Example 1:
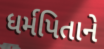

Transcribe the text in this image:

ધર્મપિતાને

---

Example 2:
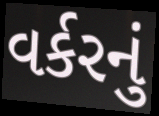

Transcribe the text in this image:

વર્કરનું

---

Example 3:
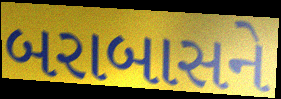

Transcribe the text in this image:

બરાબાસને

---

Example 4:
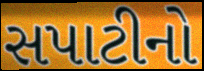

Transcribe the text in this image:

સપાટીનો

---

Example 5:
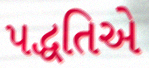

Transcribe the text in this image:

પદ્ધતિએ